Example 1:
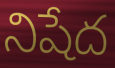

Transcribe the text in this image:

నిషేద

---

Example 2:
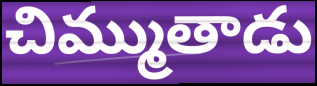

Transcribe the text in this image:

చిమ్ముతాడు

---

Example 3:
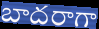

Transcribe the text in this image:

బాదరాగా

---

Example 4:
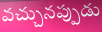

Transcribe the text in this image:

వచ్చునప్పుడు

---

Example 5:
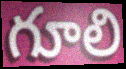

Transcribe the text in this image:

గూలి